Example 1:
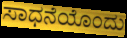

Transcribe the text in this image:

ಸಾಧನೆಯೊಂದು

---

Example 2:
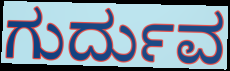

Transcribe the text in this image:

ಗುರ್ದುವ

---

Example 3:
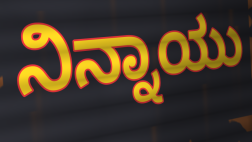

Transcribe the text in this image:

ನಿನ್ನಾಯು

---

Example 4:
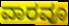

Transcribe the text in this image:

ವಾರವೂ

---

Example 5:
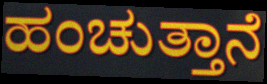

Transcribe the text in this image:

ಹಂಚುತ್ತಾನೆ